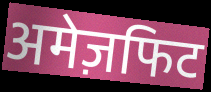
अमेज़फिट